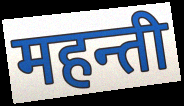
महन्ती